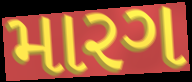
મારગ